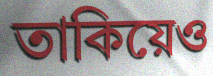
তাকিয়েও